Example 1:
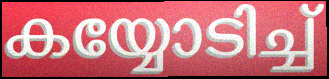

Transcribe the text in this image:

കയ്യോടിച്ച്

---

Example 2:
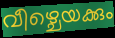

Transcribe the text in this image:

വീഴ്ചെയക്കും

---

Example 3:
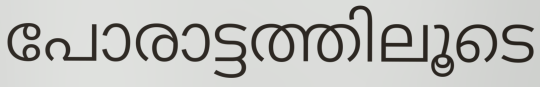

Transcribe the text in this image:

പോരാട്ടത്തിലൂടെ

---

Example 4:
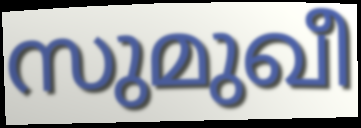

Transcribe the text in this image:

സുമുഖീ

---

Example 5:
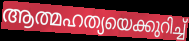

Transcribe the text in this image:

ആത്മഹത്യയെക്കുറിച്ച്